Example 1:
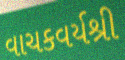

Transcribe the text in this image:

વાચકવર્યશ્રી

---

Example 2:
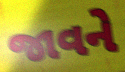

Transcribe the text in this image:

જાવને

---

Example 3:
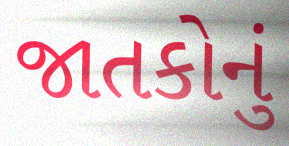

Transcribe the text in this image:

જાતકોનું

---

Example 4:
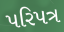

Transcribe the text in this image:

પરિપત્ર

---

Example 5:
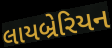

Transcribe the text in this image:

લાયબ્રેરિયન